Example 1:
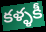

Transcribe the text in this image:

కళ్ళకీ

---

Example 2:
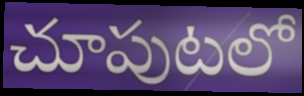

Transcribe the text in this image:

చూపుటలో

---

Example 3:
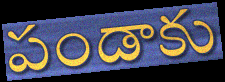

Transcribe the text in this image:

పండాకు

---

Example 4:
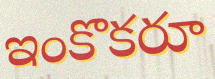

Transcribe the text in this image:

ఇంకొకరూ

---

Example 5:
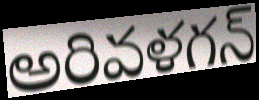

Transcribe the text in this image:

అరివళగన్